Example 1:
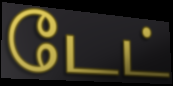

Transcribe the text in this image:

டேட்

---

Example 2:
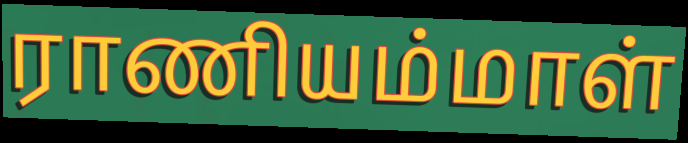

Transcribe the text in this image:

ராணியம்மாள்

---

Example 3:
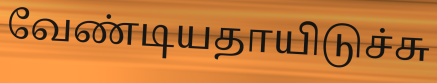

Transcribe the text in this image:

வேண்டியதாயிடுச்சு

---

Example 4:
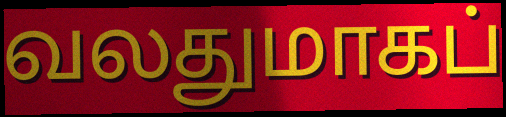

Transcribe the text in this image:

வலதுமாகப்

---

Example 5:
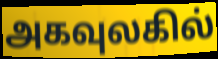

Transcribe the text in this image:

அகவுலகில்